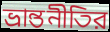
ভ্রান্তনীতির